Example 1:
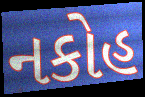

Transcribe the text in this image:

નકોહ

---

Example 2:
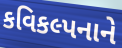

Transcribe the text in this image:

કવિકલ્પનાને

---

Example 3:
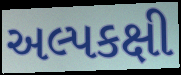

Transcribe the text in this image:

અલ્પકક્ષી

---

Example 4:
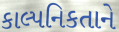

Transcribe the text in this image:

કાલ્પનિકતાને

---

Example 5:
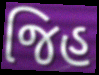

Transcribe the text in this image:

જિહ